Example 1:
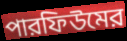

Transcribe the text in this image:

পারফিউমের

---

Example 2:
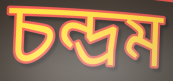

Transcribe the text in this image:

চন্দ্রম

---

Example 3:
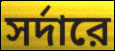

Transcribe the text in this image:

সর্দারে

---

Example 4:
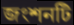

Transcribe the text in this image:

জংশনটি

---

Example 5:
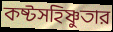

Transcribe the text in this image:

কষ্টসহিষ্ণুতার